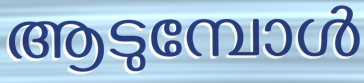
ആടുമ്പോൾ